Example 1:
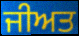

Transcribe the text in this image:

ਜੀਅਤ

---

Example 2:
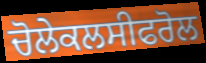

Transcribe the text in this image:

ਚੋਲੇਕਲਸੀਫਰੋਲ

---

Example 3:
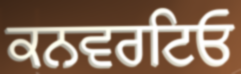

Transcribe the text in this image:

ਕਨਵਰਟਿਓ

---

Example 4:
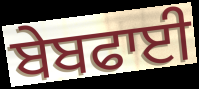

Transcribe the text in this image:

ਬੇਬਫਾਈ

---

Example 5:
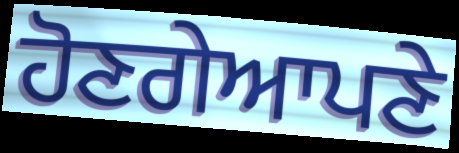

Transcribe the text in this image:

ਹੋਣਗੇਆਪਣੇ